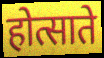
होत्साते